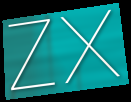
ZX